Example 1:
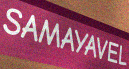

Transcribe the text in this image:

SAMAYAVEL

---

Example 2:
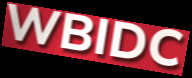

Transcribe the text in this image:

WBIDC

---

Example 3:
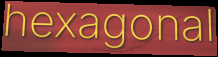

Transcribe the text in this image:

hexagonal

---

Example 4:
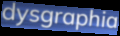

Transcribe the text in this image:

dysgraphia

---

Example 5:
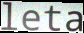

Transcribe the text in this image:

leta